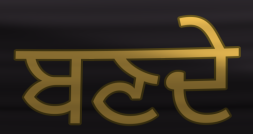
ਬਣਦੇ